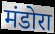
मंडोरा